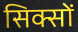
सिक्सों